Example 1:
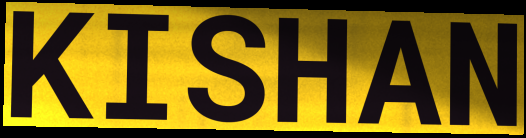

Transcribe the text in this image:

KISHAN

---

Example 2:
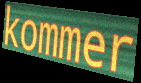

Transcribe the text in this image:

kommer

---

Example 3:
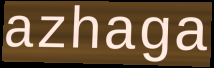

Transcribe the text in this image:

azhaga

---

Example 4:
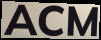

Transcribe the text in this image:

ACM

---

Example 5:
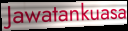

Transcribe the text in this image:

Jawatankuasa